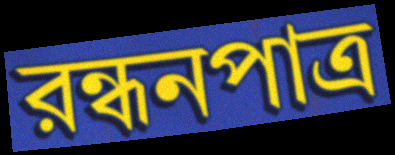
রন্ধনপাত্র